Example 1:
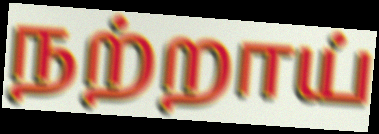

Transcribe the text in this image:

நற்றாய்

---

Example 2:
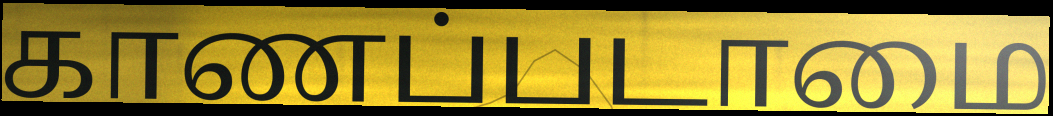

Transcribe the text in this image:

காணப்படாமை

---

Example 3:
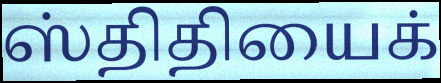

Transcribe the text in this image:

ஸ்திதியைக்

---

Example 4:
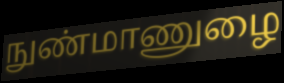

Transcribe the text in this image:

நுண்மாணுழை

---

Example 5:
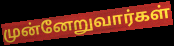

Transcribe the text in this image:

முன்னேறுவார்கள்